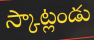
స్కాట్లండు